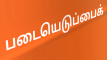
படையெடுப்பைக்